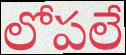
లోపలే